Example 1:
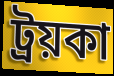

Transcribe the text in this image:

ট্রয়কা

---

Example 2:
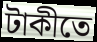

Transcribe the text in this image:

টাকীতে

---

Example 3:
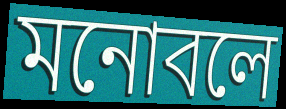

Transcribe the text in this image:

মনোবলে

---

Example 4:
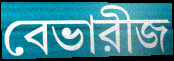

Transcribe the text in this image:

বেভারীজ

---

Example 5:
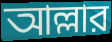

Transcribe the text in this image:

আল্লার